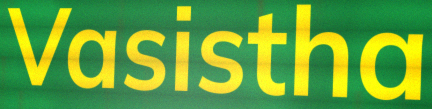
Vasistha